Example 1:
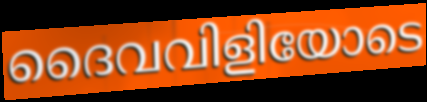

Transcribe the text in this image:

ദൈവവിളിയോടെ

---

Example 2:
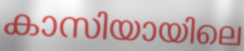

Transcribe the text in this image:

കാസിയായിലെ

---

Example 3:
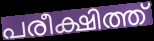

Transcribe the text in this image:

പരീക്ഷിത്ത്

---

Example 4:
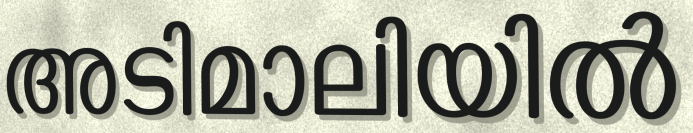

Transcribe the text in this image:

അടിമാലിയിൽ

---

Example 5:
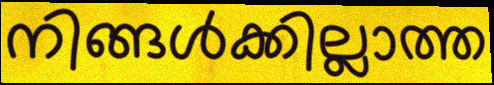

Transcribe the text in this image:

നിങ്ങൾക്കില്ലാത്ത